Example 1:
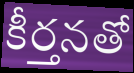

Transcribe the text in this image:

కీర్తనతో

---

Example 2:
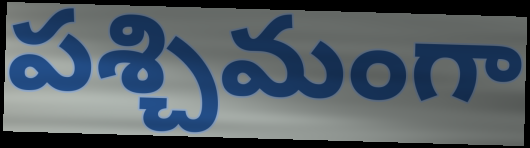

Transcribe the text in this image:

పశ్చిమంగా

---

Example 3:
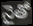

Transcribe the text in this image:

నైతో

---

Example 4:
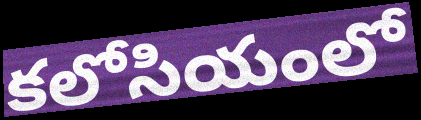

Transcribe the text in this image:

కలోసియంలో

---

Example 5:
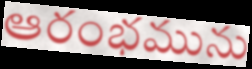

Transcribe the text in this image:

ఆరంభమును